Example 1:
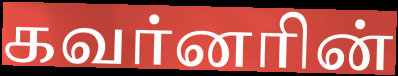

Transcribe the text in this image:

கவர்னரின்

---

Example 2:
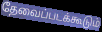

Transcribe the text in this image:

தேவைப்படக்கூடும்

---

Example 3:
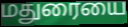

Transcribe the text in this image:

மதுரையை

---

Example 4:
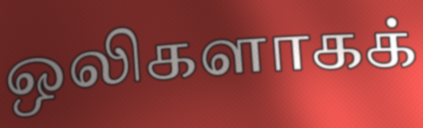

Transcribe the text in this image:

ஒலிகளாகக்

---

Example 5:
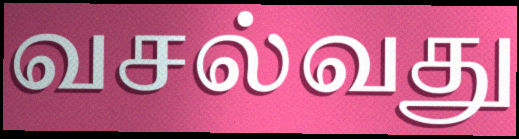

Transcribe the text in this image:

வசல்வது